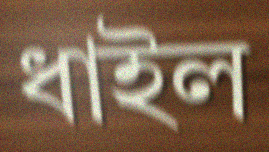
ধাইল